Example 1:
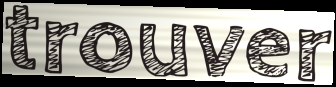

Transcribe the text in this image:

trouver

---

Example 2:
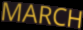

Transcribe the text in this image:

MARCH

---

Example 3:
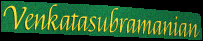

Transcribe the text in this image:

Venkatasubramanian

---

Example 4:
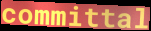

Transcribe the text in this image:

committal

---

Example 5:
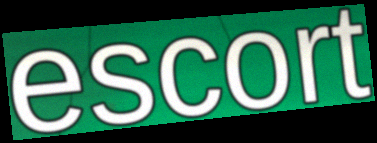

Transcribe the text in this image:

escort